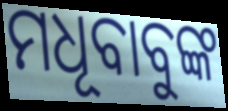
ମଧୂବାବୁଙ୍କ